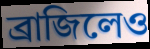
ব্রাজিলেও